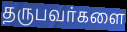
தருபவர்களை